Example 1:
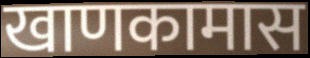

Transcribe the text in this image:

खाणकामास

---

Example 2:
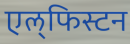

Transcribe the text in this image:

एल्फिस्टन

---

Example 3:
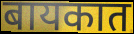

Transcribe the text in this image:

बायकात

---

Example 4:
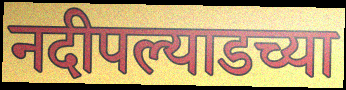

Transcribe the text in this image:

नदीपल्याडच्या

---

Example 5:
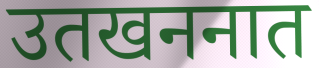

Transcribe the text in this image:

उतखननात